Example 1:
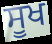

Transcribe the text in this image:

ਸੂਖ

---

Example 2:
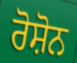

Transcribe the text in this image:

ਰੋਸ਼ੋਨ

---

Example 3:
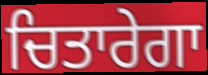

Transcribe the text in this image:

ਚਿਤਾਰੇਗਾ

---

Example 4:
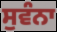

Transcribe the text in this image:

ਸੁਵੰਨਾ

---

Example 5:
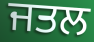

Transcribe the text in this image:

ਜਤਲ